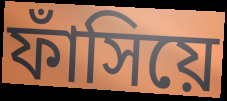
ফাঁসিয়ে